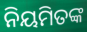
ନିୟମିତଙ୍କ